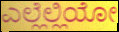
ಎಲ್ಲೆಲ್ಲಿಯೋ